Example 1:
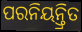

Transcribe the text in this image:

ପରନିୟନ୍ତ୍ରିତ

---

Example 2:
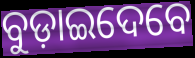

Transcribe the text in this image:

ବୁଡ଼ାଇଦେବେ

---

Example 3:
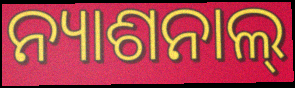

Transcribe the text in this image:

ନ୍ୟାଶନାଲ୍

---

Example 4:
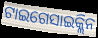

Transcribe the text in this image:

ଟାଇଗେସାଇକ୍ଲିନ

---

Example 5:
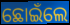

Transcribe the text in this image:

ଛୋଇଁଲେ